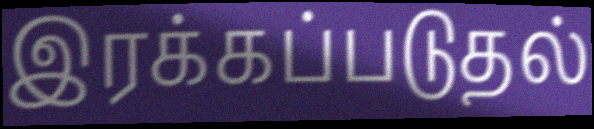
இரக்கப்படுதல்